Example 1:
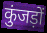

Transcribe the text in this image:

कुंजड़ों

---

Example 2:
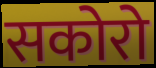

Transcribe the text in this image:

सकोरो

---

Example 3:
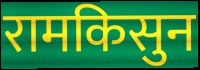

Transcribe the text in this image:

रामकिसुन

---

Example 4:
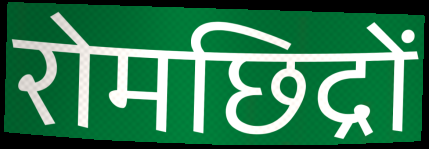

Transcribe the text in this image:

रोमछिद्रों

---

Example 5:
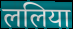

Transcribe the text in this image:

ललिया